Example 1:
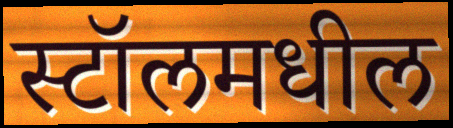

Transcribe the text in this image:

स्टॉलमधील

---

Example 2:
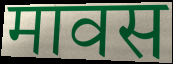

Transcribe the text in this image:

मावस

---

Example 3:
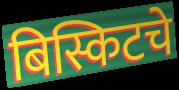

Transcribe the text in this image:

बिस्किटचे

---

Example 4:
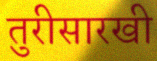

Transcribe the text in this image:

तुरीसारखी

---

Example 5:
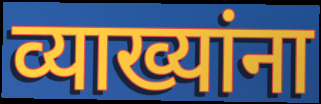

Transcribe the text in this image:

व्याख्यांना